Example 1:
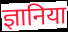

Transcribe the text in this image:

ज्ञानिया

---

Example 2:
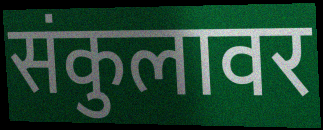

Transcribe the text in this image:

संकुलावर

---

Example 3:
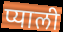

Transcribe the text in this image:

प्याली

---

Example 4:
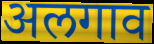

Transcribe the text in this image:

अलगाव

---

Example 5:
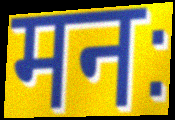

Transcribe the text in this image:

मनः